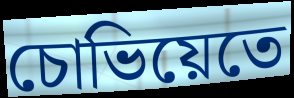
চোভিয়েতে